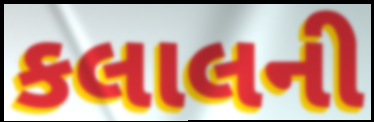
કલાલની